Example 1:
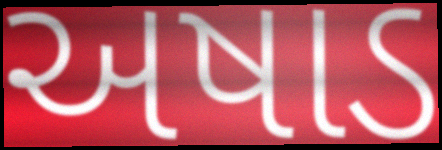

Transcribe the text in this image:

અષાડ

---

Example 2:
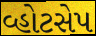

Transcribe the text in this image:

વ્હોટસેપ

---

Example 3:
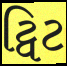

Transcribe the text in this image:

ટ્વિટ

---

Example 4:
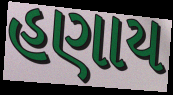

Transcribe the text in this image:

હણાય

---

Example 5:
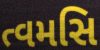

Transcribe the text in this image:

ત્વમસિ